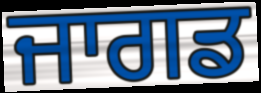
ਜਾਗਡ